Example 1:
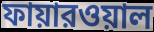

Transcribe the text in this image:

ফায়ারওয়াল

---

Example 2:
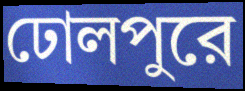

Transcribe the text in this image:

ঢোলপুরে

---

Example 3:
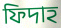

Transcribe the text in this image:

ফিদাহ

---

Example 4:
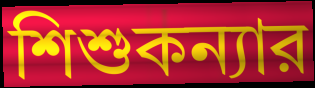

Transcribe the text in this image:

শিশুকন্যার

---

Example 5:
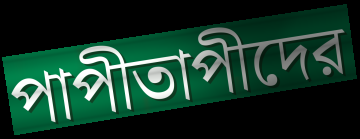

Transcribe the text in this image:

পাপীতাপীদের